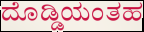
ದೊಡ್ಡಿಯಂತಹ